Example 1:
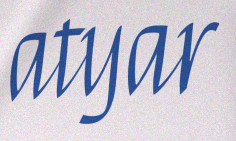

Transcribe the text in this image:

atyar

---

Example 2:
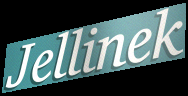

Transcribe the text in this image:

Jellinek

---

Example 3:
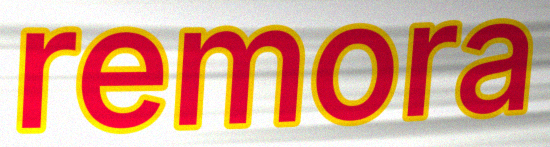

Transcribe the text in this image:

remora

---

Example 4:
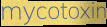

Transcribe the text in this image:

mycotoxin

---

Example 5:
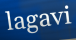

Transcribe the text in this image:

lagavi